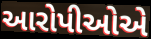
આરોપીઓએ